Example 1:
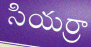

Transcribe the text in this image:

సియర్రా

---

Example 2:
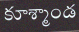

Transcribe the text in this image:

కూశ్మాండ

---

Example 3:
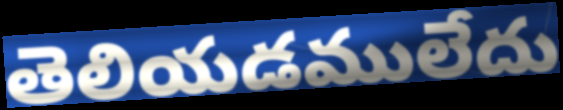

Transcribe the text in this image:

తెలియడములేదు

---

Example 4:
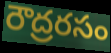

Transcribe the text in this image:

రౌద్రరసం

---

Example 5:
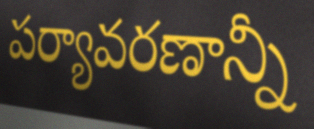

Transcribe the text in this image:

పర్యావరణాన్నీ